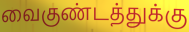
வைகுண்டத்துக்கு